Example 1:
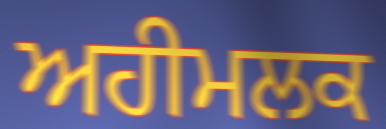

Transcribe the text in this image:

ਅਹੀਮਲਕ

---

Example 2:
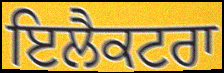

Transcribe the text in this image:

ਇਲੈਕਟਰਾ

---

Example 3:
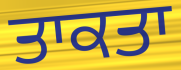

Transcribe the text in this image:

ਤਾਕਤਾ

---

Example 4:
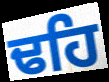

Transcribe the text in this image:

ਢਹਿ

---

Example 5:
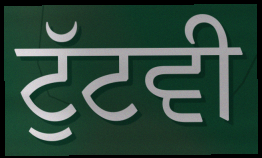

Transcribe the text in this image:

ਟੁੱਟਵੀ